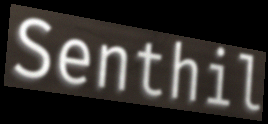
Senthil